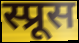
स्प्रूस